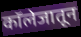
कॉलेजातून